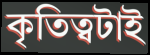
কৃতিত্বটাই